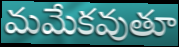
మమేకవుతూ